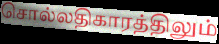
சொல்லதிகாரத்திலும்